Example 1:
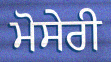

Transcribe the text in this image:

ਮੋਸੇਰੀ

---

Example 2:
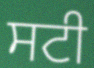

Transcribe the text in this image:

ਸਟੀ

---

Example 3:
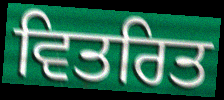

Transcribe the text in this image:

ਵਿਤਰਿਤ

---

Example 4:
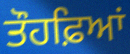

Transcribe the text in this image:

ਤੌਹਫ਼ਿਆਂ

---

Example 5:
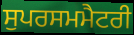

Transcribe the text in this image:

ਸੁਪਰਸਮਮੈਟਰੀ